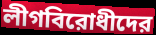
লীগবিরোধীদের